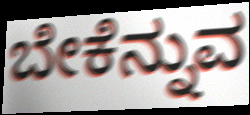
ಬೇಕೆನ್ನುವ